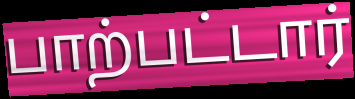
பாற்பட்டார்